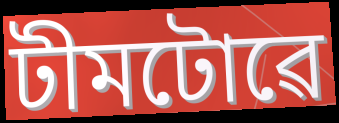
টীমটোৱে